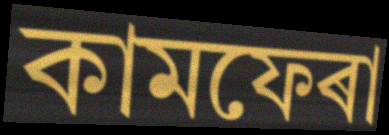
কামফেৰা